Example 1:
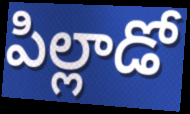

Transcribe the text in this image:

పిల్లాడో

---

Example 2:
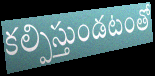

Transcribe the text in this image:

కల్పిస్తుండటంతో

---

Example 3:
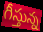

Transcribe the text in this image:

గీస్తున్న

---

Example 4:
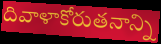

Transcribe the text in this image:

దివాళాకోరుతనాన్ని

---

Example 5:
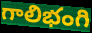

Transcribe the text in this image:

గాలిభంగి